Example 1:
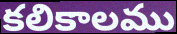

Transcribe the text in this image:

కలికాలము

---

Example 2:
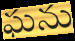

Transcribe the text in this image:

ఘను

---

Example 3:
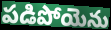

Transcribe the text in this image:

పడిపోయెను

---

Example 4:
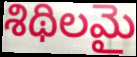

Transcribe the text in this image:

శిథిలమై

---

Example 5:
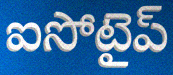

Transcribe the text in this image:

ఐసోటైప్